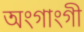
অংগাংগী